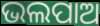
ଭଲପାଅ